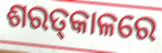
ଶରତ୍‌କାଳରେ